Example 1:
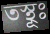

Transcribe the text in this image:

তস্থূঃ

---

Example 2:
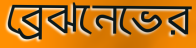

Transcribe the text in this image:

ব্রেঝনেভের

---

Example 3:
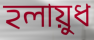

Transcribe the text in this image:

হলায়ুধ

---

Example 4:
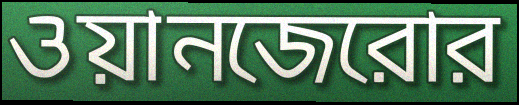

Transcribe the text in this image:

ওয়ানজেরোর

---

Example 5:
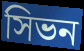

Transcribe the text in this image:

সিভন